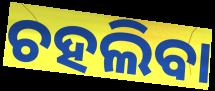
ଚହଲିବା